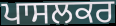
ਪਾਸਲਕਰ